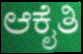
ಆಕೈತಿ